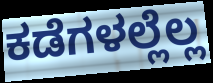
ಕಡೆಗಳಲ್ಲೆಲ್ಲ